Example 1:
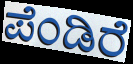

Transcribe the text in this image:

ಪೆಂಡಿರೆ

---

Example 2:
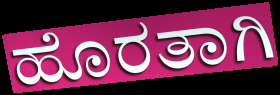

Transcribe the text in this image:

ಹೊರತಾಗಿ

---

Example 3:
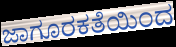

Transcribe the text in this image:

ಜಾಗೂರಕತೆಯಿಂದ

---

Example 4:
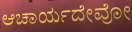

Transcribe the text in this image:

ಆಚಾರ್ಯದೇವೋ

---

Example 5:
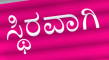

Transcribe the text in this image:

ಸ್ಥಿರವಾಗಿ